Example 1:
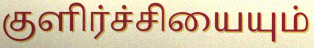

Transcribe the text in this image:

குளிர்ச்சியையும்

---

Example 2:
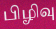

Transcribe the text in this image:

பிழிவு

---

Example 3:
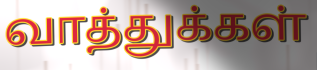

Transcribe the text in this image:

வாத்துக்கள்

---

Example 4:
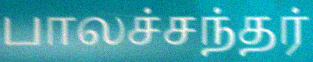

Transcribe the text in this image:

பாலச்சந்தர்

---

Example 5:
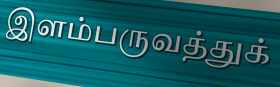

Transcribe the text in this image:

இளம்பருவத்துக்